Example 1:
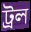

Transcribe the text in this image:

ট্রল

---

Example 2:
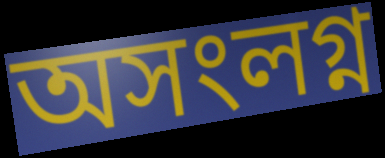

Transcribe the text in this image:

অসংলগ্ন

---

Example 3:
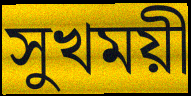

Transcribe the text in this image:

সুখময়ী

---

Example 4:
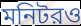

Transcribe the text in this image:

মনিটরও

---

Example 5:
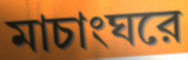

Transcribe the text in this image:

মাচাংঘরে